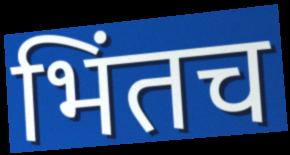
भिंतच